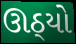
ઊઠ્યો